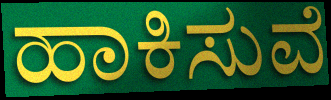
ಹಾಕಿಸುವೆ